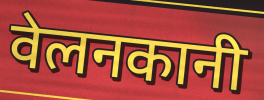
वेलनकानी